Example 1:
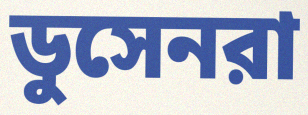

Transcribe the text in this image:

ডুসেনরা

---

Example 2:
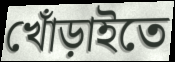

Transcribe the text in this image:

খোঁড়াইতে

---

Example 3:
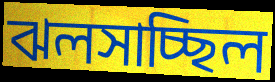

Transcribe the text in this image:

ঝলসাচ্ছিল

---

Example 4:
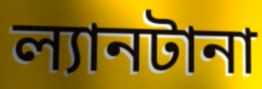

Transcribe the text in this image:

ল্যানটানা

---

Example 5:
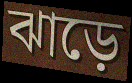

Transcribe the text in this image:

ঝাড়ে